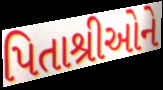
પિતાશ્રીઓને